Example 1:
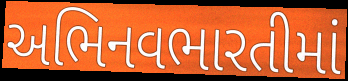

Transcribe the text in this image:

અભિનવભારતીમાં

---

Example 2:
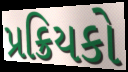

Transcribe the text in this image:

પ્રક્રિયકો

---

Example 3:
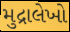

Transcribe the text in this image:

મુદ્રાલેખો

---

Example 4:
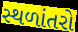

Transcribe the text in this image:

સ્થળાંતરો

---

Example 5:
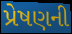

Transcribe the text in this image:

પ્રેષણની